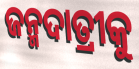
ଜନ୍ମଦାତ୍ରୀକୁ